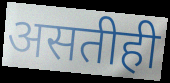
असतीही